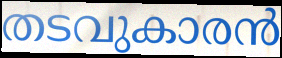
തടവുകാരൻ